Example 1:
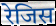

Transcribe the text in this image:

रेजिस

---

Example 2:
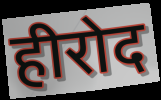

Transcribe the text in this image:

हीरोद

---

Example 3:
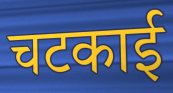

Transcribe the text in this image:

चटकाई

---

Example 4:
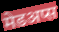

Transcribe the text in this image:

मेडअप्स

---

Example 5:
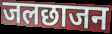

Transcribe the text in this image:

जलछाजन